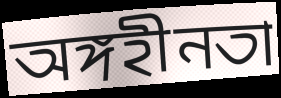
অঙ্গহীনতা